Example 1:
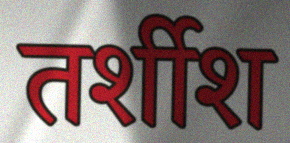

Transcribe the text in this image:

तर्शीश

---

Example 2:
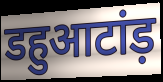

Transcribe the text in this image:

डहुआटांड़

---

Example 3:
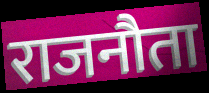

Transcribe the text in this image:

राजनौता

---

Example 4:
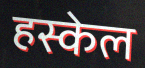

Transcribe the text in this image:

हस्केल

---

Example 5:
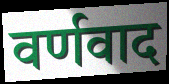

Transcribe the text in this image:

वर्णवाद